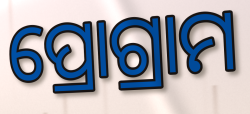
ପ୍ରୋଗ୍ରାମ